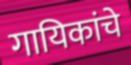
गायिकांचे